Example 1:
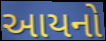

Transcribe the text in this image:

આયનો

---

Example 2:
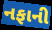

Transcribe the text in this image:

નફાની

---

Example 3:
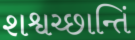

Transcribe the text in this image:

શશ્વચ્છાન્તિં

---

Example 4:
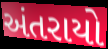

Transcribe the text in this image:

અંતરાયો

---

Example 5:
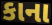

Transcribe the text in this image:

કાના